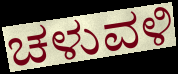
ಚಳುವಳಿ